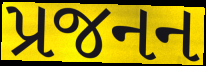
પ્રજનન